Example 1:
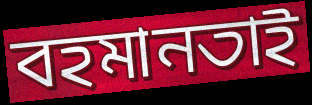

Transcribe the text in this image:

বহমানতাই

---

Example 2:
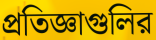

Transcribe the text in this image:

প্রতিজ্ঞাগুলির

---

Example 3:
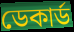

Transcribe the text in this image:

ডেকার্ড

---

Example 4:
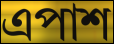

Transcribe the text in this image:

এপাশ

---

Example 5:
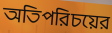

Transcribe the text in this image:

অতিপরিচয়ের